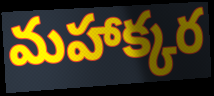
మహాక్కర